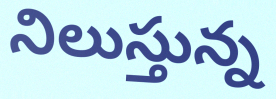
నిలుస్తున్న